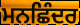
ਮਨਛਿੰਦਰ